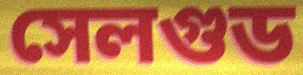
সেলগুড